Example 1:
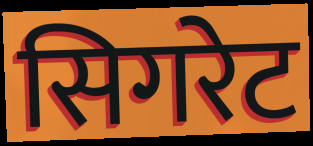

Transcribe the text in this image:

सिगरेट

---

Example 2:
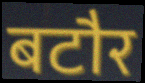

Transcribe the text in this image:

बटौर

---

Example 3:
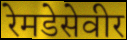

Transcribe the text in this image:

रेमडेसेवीर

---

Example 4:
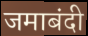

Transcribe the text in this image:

जमाबंदी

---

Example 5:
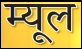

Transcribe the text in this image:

म्यूल